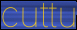
cuttu